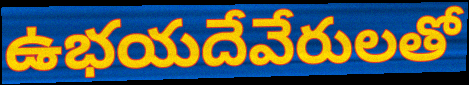
ఉభయదేవేరులతో